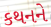
કથનને